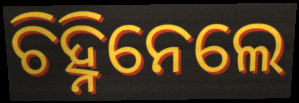
ଚିହ୍ନିନେଲେ